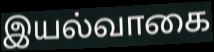
இயல்வாகை